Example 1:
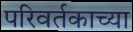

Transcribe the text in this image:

परिवर्तकाच्या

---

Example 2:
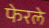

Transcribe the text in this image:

फेरले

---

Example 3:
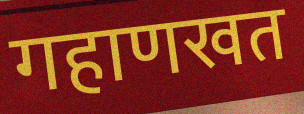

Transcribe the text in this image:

गहाणखत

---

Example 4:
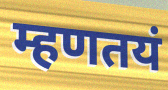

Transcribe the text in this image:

म्हणतयं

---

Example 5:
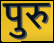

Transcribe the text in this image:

पुरु